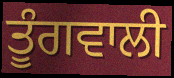
ਤੂੰਗਵਾਲੀ